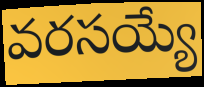
వరసయ్యే